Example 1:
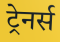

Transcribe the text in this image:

ट्रेनर्स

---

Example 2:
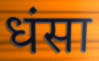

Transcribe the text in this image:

धंसा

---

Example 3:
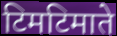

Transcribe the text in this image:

टिमटिमाते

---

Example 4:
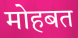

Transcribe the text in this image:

मोहबत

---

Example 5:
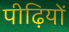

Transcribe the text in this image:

पीढ़ियों